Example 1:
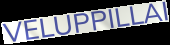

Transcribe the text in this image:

VELUPPILLAI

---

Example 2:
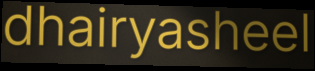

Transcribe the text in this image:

dhairyasheel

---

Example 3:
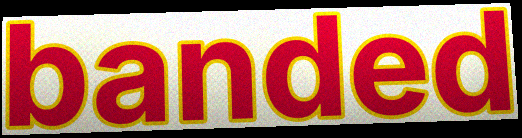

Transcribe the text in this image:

banded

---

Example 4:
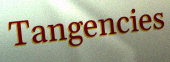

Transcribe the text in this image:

Tangencies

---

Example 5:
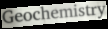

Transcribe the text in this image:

Geochemistry